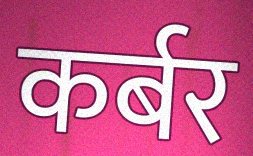
कर्बर